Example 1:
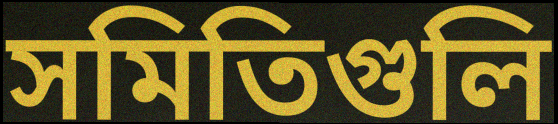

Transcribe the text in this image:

সমিতিগুলি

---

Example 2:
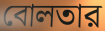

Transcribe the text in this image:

বোলতার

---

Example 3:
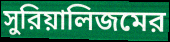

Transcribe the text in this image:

সুরিয়ালিজমের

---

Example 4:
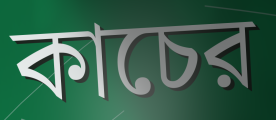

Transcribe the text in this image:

কাচের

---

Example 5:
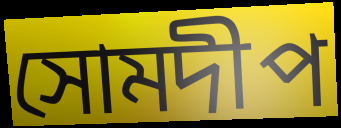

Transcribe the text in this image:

সোমদীপ